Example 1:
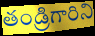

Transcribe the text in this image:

తండ్రిగారిని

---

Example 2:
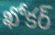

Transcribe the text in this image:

ఖోకర్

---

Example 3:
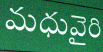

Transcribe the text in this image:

మధువైరి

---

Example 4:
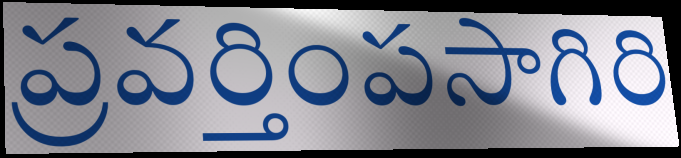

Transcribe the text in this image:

ప్రవర్తింపసాగిరి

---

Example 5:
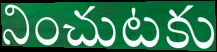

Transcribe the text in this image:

నించుటకు